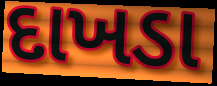
દાખડા